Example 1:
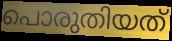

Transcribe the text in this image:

പൊരുതിയത്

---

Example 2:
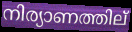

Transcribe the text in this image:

നിര്യാണത്തില്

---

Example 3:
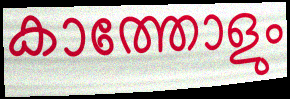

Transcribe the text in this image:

കാത്തോളും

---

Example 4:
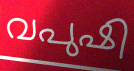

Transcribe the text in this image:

വപുഷി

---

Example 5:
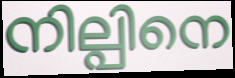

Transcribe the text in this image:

നില്പിനെ